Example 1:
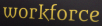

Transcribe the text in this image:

workforce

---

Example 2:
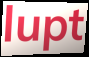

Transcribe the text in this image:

lupt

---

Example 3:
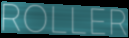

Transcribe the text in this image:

ROLLER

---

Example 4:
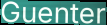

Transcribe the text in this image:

Guenter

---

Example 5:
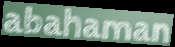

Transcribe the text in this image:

abahaman